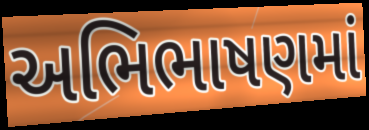
અભિભાષણમાં